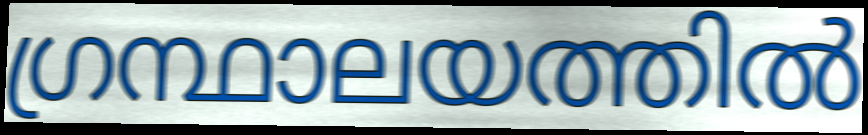
ഗ്രന്ഥാലയത്തിൽ